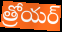
త్రోయర్